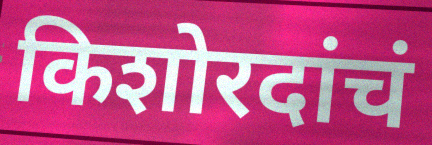
किशोरदांचं